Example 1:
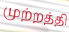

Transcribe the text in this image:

முற்றத்தி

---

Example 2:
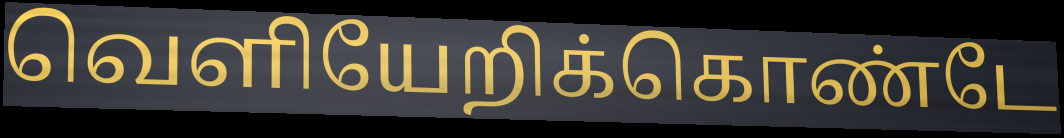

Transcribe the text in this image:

வெளியேறிக்கொண்டே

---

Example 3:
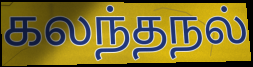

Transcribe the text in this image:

கலந்தநல்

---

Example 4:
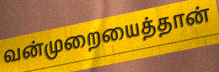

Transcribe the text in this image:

வன்முறையைத்தான்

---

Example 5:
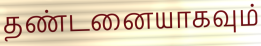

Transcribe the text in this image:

தண்டனையாகவும்